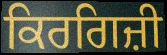
ਕਿਰਗਿਜ਼ੀ